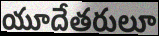
యూదేతరులూ